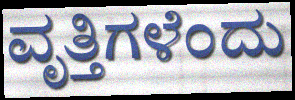
ವೃತ್ತಿಗಳೆಂದು